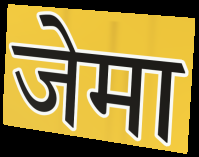
जेमा